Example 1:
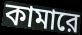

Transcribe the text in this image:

কামারে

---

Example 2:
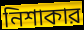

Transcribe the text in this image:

নিশাকার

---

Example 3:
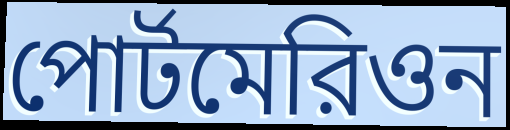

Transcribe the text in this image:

পোর্টমেরিওন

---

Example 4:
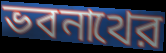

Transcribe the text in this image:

ভবনাথের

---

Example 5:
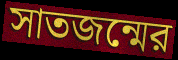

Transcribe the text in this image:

সাতজন্মের